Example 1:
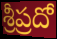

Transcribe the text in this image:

శ్రీప్రదో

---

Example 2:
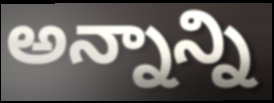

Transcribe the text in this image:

అన్నాన్ని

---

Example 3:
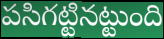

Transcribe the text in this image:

పసిగట్టినట్టుంది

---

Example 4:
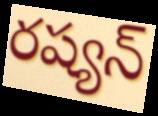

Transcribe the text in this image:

రష్యన్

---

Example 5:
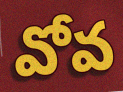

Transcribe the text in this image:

వోవ